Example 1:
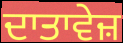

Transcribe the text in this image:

ਦਾਤਾਵੇਜ਼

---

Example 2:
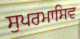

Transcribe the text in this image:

ਸੁਪਰਮਾਸਿਵ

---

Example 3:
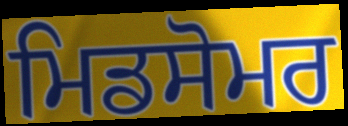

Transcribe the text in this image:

ਮਿਡਸੋਮਰ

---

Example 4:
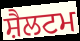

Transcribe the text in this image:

ਸ਼ੈਲਟਮ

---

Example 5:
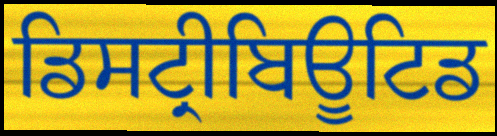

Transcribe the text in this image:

ਡਿਸਟ੍ਰੀਬਿਊਟਿਡ